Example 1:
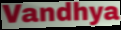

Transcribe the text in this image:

Vandhya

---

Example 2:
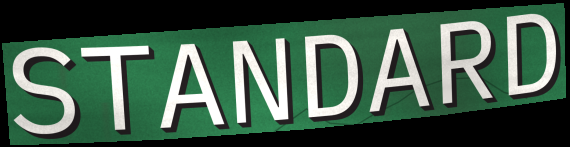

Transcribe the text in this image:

STANDARD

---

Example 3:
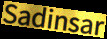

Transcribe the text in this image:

Sadinsar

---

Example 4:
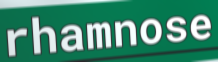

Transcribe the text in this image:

rhamnose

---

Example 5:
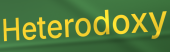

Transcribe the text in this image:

Heterodoxy